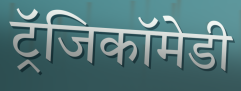
ट्रॅजिकॉमेडी